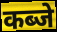
कब्जे